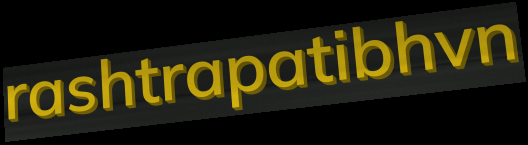
rashtrapatibhvn